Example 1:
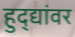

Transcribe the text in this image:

हुद्द्यांवर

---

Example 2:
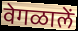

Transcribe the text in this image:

वेगळालें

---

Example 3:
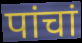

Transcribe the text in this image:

पांचां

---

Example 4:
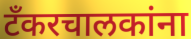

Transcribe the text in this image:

टँकरचालकांना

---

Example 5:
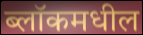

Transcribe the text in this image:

ब्लॉकमधील